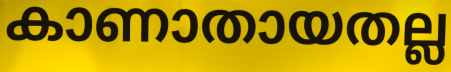
കാണാതായതല്ല